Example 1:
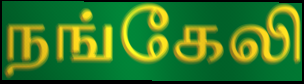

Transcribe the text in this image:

நங்கேலி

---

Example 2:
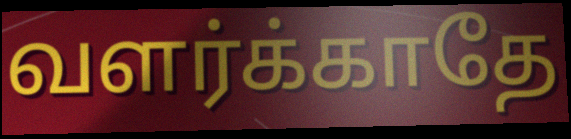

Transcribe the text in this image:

வளர்க்காதே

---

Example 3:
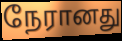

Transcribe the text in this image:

நேரானது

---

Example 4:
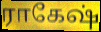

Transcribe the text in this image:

ராகேஷ்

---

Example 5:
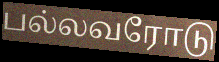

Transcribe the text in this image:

பல்லவரோடு